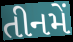
તીનમેં